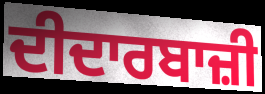
ਦੀਦਾਰਬਾਜ਼ੀ